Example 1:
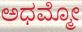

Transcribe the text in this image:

ಅಧಮ್ಮೋ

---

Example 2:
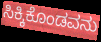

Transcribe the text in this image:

ಸಿಕ್ಕಿಕೊಂಡವನು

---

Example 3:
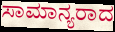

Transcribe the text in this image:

ಸಾಮಾನ್ಯರಾದ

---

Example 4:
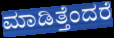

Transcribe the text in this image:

ಮಾಡಿತ್ತೆಂದರೆ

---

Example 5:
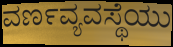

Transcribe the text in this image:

ವರ್ಣವ್ಯವಸ್ಥೆಯು